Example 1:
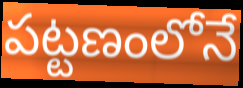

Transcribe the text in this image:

పట్టణంలోనే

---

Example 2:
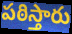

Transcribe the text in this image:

పఠిస్తారు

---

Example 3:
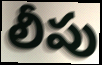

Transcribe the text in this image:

లీపు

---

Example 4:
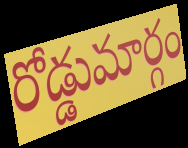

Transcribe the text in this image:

రోడ్డుమార్గం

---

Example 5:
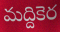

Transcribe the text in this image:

మద్దికెర